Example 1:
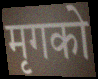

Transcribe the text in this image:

मृगको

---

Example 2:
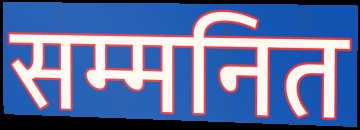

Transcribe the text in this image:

सम्मनित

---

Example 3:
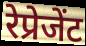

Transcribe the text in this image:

रेप्रेजेंट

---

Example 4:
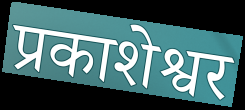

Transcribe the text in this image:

प्रकाशेश्वर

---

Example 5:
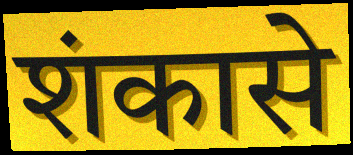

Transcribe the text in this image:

शंकासे